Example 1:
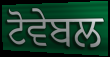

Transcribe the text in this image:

ਟੋਵੇਬਲ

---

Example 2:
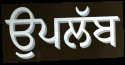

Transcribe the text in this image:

ਉਪਲੱਬ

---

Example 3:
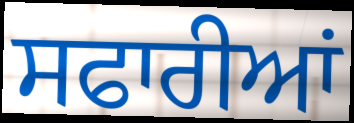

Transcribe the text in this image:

ਸਫਾਰੀਆਂ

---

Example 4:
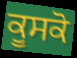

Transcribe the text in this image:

ਕੂਸਕੋ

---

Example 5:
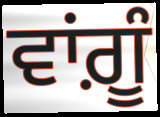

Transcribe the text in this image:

ਵਾਂਗ਼ੂੰ